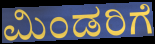
ಮಿಂಡರಿಗೆ